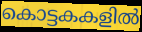
കൊട്ടകകളിൽ